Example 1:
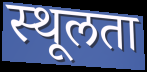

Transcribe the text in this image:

स्थूलता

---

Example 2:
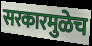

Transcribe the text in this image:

सरकारमुळेच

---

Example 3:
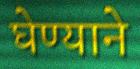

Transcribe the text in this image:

घेण्याने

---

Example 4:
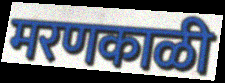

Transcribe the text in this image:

मरणकाळी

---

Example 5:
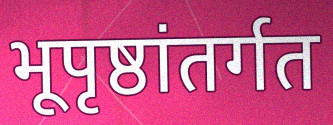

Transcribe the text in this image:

भूपृष्ठांतर्गत